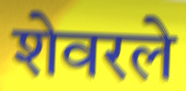
शेवरले